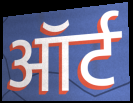
ऑर्ट